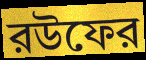
রউফের